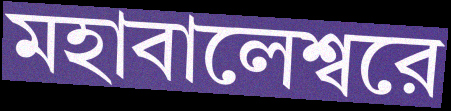
মহাবালেশ্বরে